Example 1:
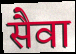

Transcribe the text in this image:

सैवा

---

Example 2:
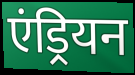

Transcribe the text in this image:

एंड्रियन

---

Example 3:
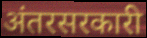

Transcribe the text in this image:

अंतरसरकारी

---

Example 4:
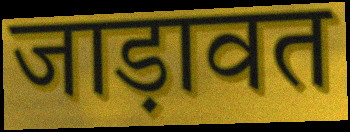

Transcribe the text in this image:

जाड़ावत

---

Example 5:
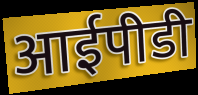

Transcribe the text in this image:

आईपीडी